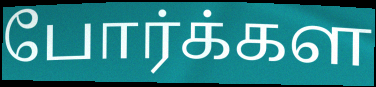
போர்க்கள